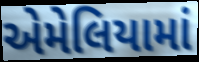
એમેલિયામાં